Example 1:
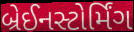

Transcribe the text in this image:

બ્રેઈનસ્ટોર્મિંગ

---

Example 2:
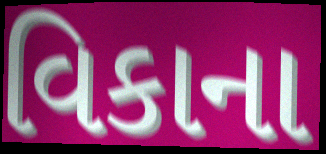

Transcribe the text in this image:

વિકાના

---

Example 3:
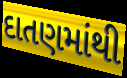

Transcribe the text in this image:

દાતણમાંથી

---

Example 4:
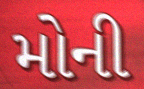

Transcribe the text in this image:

મોની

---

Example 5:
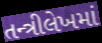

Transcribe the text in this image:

તન્ત્રીલેખમાં